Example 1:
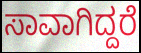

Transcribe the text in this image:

ಸಾವಾಗಿದ್ದರೆ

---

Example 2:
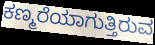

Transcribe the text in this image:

ಕಣ್ಮರೆಯಾಗುತ್ತಿರುವ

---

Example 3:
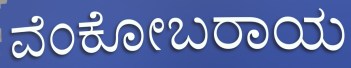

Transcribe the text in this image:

ವೆಂಕೋಬರಾಯ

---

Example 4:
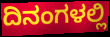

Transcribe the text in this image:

ದಿನಂಗಳಲ್ಲಿ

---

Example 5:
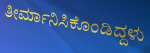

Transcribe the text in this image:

ತೀರ್ಮಾನಿಸಿಕೊಂಡಿದ್ದಳು